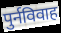
पुर्नविवाह